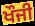
ਖੌਜੀ